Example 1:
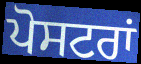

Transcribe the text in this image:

ਪੋਸਟਰਾਂ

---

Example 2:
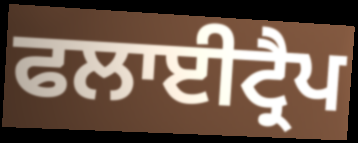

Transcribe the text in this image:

ਫਲਾਈਟ੍ਰੈਪ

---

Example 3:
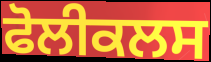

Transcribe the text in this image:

ਫੋਲੀਕਲਸ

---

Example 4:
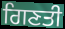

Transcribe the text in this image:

ਗਿਣਤੀ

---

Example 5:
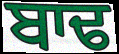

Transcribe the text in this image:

ਬਾਢ